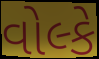
વોલ્કે